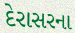
દેરાસરના